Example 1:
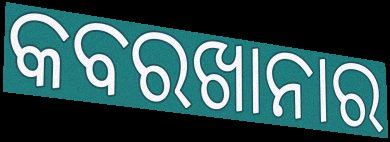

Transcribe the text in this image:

କବରଖାନାର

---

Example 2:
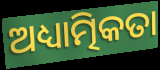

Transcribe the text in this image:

ଅଧ୍ୟାତ୍ମିକତା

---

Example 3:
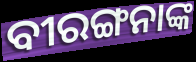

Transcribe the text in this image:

ବୀରଙ୍ଗନାଙ୍କ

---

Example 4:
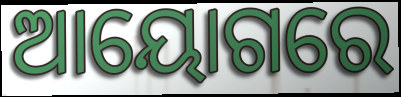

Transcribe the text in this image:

ଆୟୋଗରେ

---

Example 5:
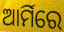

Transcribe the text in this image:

ଆର୍ମିରେ